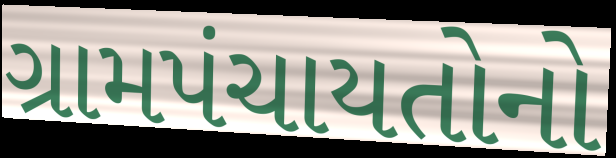
ગ્રામપંચાયતોનો